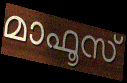
മാഫൂസ്